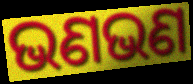
ଭଣଭଣ